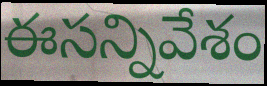
ఈసన్నివేశం